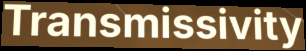
Transmissivity